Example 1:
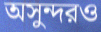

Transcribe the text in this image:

অসুন্দরও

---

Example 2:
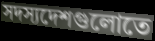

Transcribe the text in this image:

সদস্যদেশগুলোতে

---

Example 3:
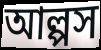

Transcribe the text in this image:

আল্পস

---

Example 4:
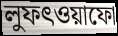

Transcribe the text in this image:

লুফৎওয়াফো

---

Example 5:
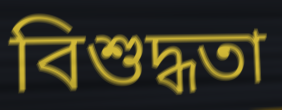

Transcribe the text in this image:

বিশুদ্ধতা